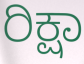
ರಿಕ್ಷಾ